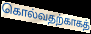
கொல்வதற்காகத்